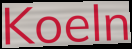
Koeln